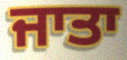
ਜਾਤਾ